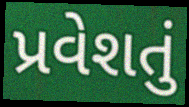
પ્રવેશતું